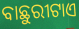
ବାଛୁରୀଟାଏ